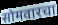
सोमवारचा